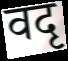
वदृ